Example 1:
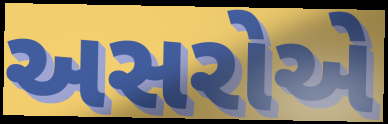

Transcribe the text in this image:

અસરોએ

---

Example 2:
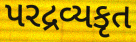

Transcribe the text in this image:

પરદ્રવ્યકૃત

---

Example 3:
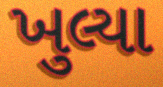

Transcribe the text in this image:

ખુલ્યા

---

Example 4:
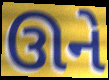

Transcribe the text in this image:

ઊને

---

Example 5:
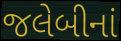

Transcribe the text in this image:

જલેબીનાં